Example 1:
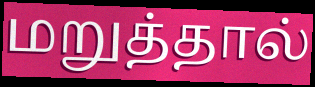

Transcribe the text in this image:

மறுத்தால்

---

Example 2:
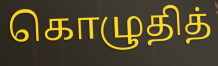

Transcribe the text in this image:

கொழுதித்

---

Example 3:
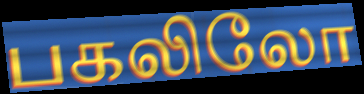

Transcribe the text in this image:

பகலிலோ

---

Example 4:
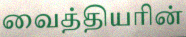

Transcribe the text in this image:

வைத்தியரின்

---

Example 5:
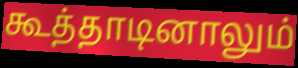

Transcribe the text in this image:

கூத்தாடினாலும்